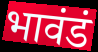
भावंडं